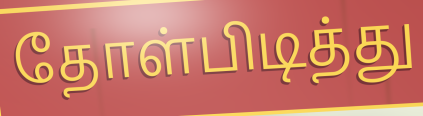
தோள்பிடித்து